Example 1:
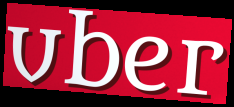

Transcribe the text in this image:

uber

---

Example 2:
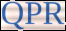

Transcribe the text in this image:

QPR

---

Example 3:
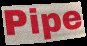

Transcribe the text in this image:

Pipe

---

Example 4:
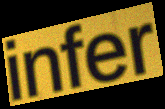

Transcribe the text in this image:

infer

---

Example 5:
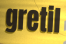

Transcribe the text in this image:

gretil